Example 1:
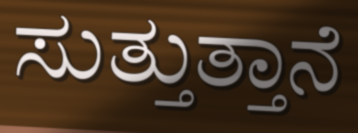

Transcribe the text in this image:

ಸುತ್ತುತ್ತಾನೆ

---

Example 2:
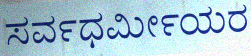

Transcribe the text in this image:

ಸರ್ವಧರ್ಮೀಯರ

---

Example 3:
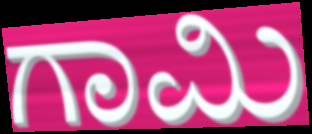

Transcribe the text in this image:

ಗಾಮಿ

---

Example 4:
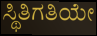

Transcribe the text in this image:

ಸ್ಥಿತಿಗತಿಯೇ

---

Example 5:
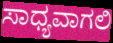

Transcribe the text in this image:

ಸಾಧ್ಯವಾಗಲಿ